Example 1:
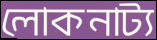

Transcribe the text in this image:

লোকনাট্য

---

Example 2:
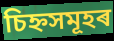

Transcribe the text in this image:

চিহ্নসমূহৰ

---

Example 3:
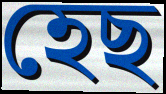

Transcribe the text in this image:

হেছ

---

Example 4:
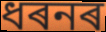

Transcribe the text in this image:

ধৰনৰ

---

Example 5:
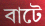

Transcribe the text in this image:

বাটে